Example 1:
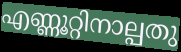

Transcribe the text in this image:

എണ്ണൂറ്റിനാല്പതു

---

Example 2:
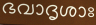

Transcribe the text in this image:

ഭവാദൃശാഃ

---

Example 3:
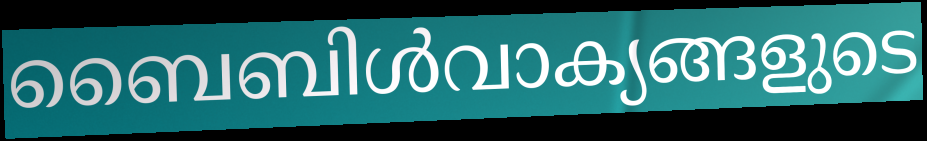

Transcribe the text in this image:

ബൈബിൾവാക്യങ്ങളുടെ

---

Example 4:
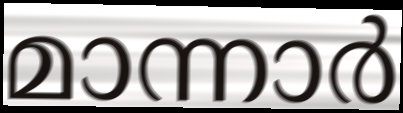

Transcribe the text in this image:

മാന്നാർ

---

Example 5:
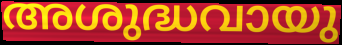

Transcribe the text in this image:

അശുദ്ധവായു